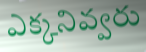
ఎక్కనివ్వరు